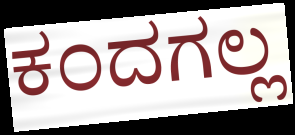
ಕಂದಗಲ್ಲ